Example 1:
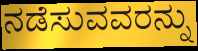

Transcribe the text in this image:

ನಡೆಸುವವರನ್ನು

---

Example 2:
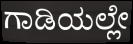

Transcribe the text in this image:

ಗಾಡಿಯಲ್ಲೇ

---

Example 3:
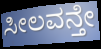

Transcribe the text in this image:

ಸೀಲವನ್ತೇ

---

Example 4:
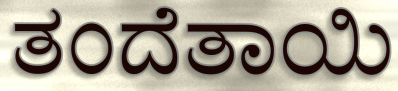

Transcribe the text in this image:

ತಂದೆತಾಯಿ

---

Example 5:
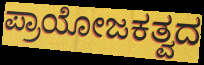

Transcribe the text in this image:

ಪ್ರಾಯೋಜಕತ್ವದ